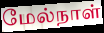
மேல்நாள்